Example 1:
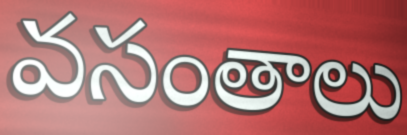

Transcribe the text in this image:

వసంతాలు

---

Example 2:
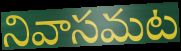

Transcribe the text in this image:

నివాసమట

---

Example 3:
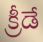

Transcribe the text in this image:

క్రీడే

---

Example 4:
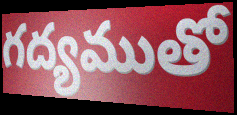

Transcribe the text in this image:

గద్యముతో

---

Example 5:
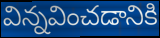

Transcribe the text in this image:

విన్నవించడానికి